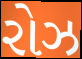
રોઝ